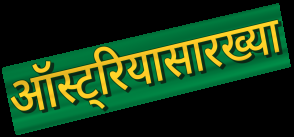
ऑस्ट्रियासारख्या